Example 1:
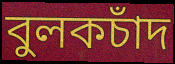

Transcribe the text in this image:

বুলকচাঁদ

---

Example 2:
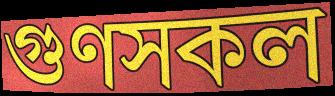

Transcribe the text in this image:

গুণসকল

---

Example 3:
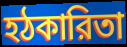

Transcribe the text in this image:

হঠকারিতা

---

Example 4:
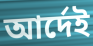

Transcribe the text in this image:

আর্দেই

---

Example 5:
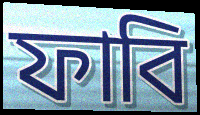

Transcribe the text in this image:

ফাবি